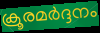
ക്രൂരമർദ്ദനം